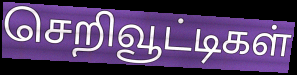
செறிவூட்டிகள்